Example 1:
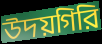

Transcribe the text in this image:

উদয়গিরি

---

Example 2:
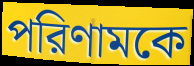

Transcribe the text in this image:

পরিণামকে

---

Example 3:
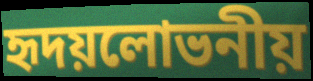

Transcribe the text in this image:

হৃদয়লোভনীয়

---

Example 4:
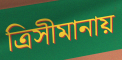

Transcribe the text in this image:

ত্রিসীমানায়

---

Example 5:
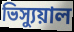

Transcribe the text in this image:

ভিস্যুয়াল